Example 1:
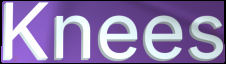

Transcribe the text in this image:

Knees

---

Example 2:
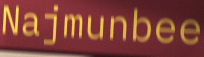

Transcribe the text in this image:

Najmunbee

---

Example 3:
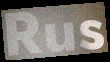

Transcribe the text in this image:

Rus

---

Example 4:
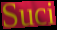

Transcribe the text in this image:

Suci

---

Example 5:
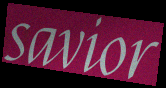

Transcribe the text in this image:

savior